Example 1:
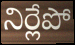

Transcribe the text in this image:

నిర్లేపో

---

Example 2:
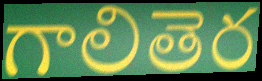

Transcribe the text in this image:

గాలితెర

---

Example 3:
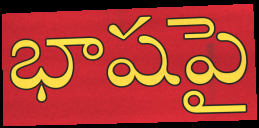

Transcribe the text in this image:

భాషపై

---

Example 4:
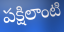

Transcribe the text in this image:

పక్షిలాంటి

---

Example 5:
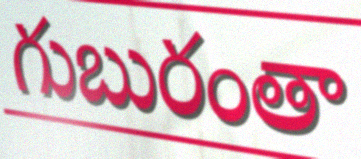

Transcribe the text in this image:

గుబురంతా